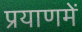
प्रयाणमें